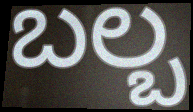
ಬಲ್ಬ